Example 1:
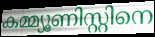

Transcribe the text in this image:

കമ്മ്യൂണിസ്റ്റിനെ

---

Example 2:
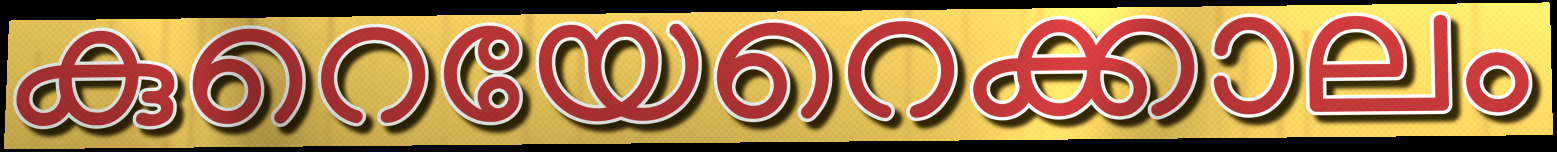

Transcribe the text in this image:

കുറെയേറെക്കാലം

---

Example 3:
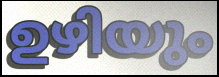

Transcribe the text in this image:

ഉഴിയും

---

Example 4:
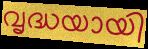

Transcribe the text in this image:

വൃദ്ധയായി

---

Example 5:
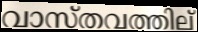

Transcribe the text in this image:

വാസ്തവത്തില്